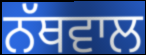
ਨੱਥਵਾਲ